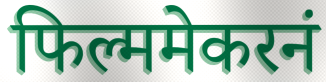
फिल्ममेकरनं